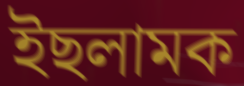
ইছলামক